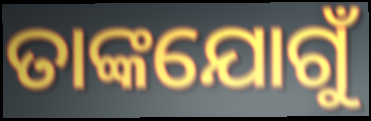
ତାଙ୍କଯୋଗୁଁ